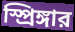
স্প্রিঙ্গার